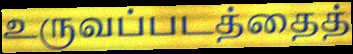
உருவப்படத்தைத்